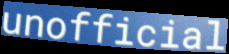
unofficial